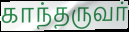
காந்தருவர்